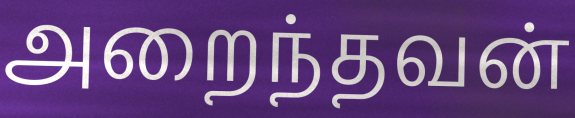
அறைந்தவன்